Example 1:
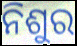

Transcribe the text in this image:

ନିଶୁର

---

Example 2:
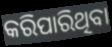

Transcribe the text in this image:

କରିପାରିଥିବା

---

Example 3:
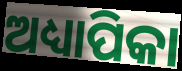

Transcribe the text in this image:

ଅଧ୍ୟାପିକା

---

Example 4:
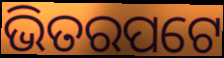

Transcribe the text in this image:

ଭିତରପଟେ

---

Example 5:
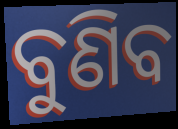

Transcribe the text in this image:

ବୁଣିବ